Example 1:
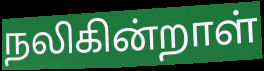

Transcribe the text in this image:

நலிகின்றாள்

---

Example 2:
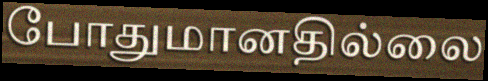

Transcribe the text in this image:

போதுமானதில்லை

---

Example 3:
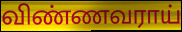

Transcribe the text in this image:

விண்ணவராய்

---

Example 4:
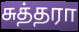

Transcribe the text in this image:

சுத்தரா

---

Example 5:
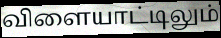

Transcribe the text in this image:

விளையாட்டிலும்